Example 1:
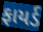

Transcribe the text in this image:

ફાયર્ડ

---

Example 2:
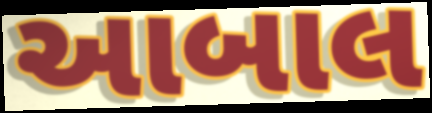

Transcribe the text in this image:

આબાલ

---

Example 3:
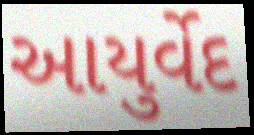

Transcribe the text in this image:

આયુર્વેદ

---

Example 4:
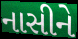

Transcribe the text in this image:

નાસીને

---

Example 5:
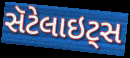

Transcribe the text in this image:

સૅટેલાઇટ્સ